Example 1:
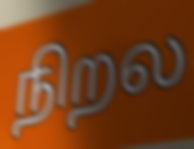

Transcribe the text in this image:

நிறல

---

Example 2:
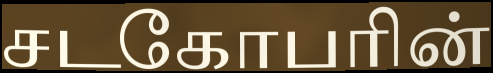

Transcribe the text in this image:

சடகோபரின்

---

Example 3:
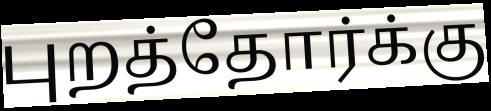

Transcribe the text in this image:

புறத்தோர்க்கு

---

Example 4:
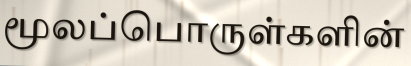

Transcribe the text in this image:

மூலப்பொருள்களின்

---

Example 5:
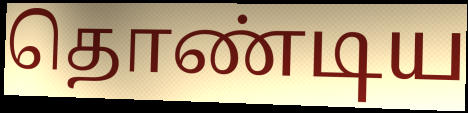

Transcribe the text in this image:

தொண்டிய